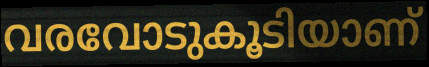
വരവോടുകൂടിയാണ്